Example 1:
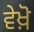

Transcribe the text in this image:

ਵੇਖ਼ੋ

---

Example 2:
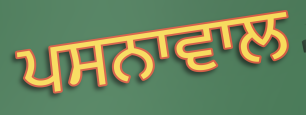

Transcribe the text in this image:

ਪਸਨਾਵਾਲ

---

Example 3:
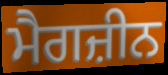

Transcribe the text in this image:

ਮੈਗਜ਼ੀਨ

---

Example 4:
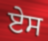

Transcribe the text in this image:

ਏਸ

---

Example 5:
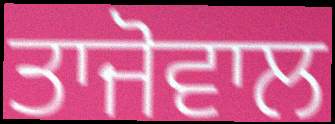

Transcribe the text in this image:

ਤਾਜੋਵਾਲ